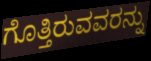
ಗೊತ್ತಿರುವವರನ್ನು